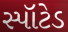
સ્પૉટેડ